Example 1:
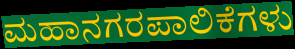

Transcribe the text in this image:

ಮಹಾನಗರಪಾಲಿಕೆಗಳು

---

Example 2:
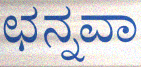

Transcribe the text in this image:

ಛನ್ನವಾ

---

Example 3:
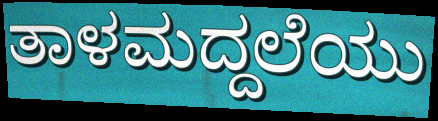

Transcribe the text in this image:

ತಾಳಮದ್ದಲೆಯು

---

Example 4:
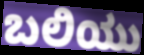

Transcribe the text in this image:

ಬಲಿಯು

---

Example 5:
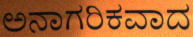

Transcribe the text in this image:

ಅನಾಗರಿಕವಾದ